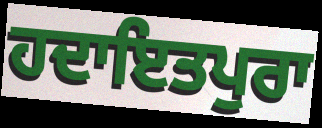
ਹਦਾਇਤਪੁਰਾ